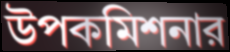
উপকমিশনার